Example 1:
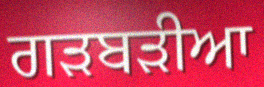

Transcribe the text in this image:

ਗੜਬੜੀਆ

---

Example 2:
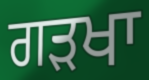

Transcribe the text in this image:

ਗੜਖਾ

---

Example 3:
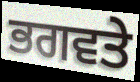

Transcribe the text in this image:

ਭਗਵਤੇ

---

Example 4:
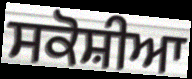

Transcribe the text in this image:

ਸਕੋਸ਼ੀਆ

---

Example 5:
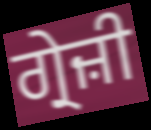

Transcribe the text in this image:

ਗ੍ਰੇਜ਼ੀ